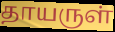
தாயருள்